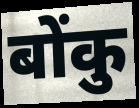
बोंकु